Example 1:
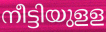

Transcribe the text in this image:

നീട്ടിയുളള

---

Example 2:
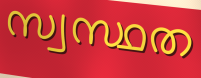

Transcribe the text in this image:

സ്വസ്ഥത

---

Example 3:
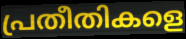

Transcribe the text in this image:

പ്രതീതികളെ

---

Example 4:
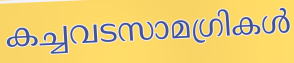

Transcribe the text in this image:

കച്ചവടസാമഗ്രികൾ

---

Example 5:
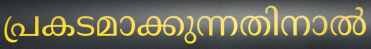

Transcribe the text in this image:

പ്രകടമാക്കുന്നതിനാൽ